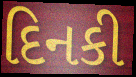
દિનકી